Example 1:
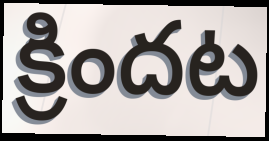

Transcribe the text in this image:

క్రిందట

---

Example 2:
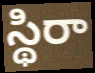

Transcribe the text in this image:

స్థిరా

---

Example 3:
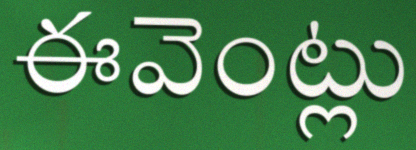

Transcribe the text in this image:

ఈవెంట్లు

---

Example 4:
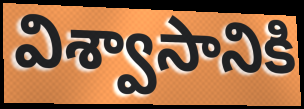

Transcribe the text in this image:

విశ్వాసానికి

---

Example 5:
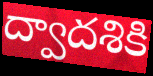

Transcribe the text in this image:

ద్వాదశికి